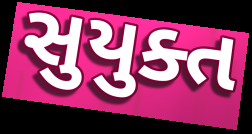
સુયુક્ત